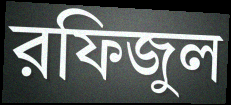
রফিজুল